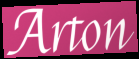
Arton